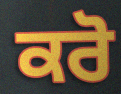
ਕਰੋ